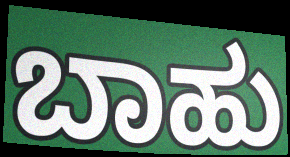
ಬಾಹು